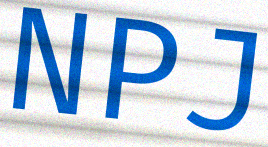
NPJ